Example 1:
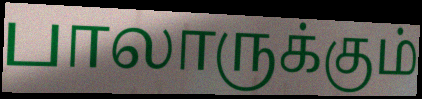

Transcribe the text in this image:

பாலாருக்கும்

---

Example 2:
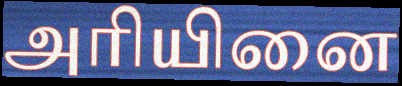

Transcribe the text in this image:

அரியினை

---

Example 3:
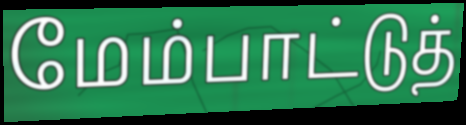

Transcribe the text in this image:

மேம்பாட்டுத்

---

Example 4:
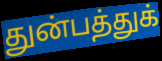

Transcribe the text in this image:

துன்பத்துக்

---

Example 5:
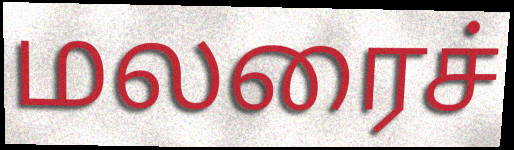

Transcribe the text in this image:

மலரைச்